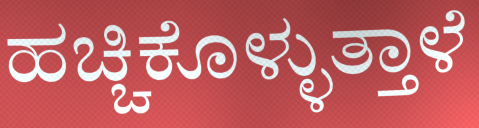
ಹಚ್ಚಿಕೊಳ್ಳುತ್ತಾಳೆ